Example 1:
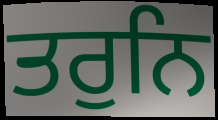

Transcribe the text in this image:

ਤਰੁਨਿ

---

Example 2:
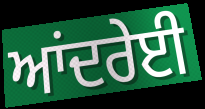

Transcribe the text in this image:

ਆਂਦਰੇਈ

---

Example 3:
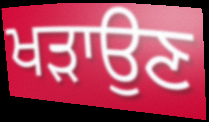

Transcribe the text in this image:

ਖੜਾਉਣ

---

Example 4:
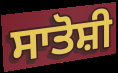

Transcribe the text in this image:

ਸਾਤੋਸ਼ੀ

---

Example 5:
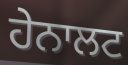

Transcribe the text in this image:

ਹੇਨਾਲਟ